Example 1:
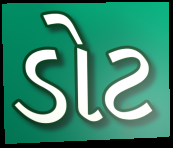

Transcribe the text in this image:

ડોટ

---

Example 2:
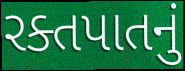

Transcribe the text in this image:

રક્તપાતનું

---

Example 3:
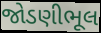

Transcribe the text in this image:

જોડણીભૂલ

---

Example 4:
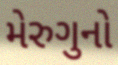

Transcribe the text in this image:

મેરુગુનો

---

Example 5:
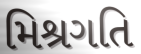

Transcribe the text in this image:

મિશ્રગતિ